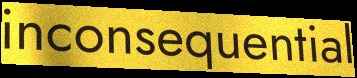
inconsequential